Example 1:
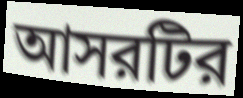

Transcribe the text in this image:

আসরটির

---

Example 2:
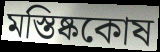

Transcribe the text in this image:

মস্তিষ্ককোষ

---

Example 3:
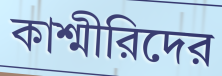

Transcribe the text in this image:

কাশ্মীরিদের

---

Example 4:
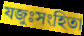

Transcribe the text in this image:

যজুঃসংহিতা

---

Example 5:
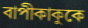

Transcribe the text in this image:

বাপীকাকুকে